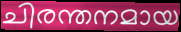
ചിരന്തനമായ